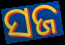
ସଜ